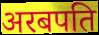
अरबपति